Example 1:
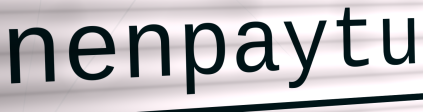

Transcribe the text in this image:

nenpaytu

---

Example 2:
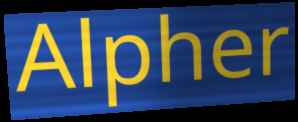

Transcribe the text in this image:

Alpher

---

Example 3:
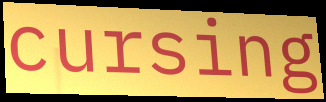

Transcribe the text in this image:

cursing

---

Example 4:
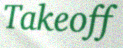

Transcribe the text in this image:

Takeoff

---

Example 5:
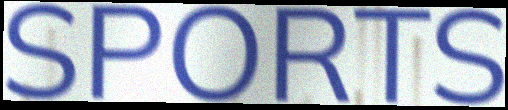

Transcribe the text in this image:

SPORTS